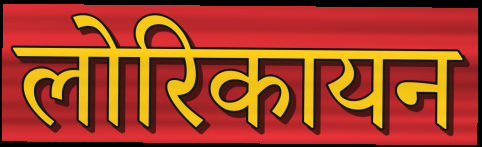
लोरिकायन